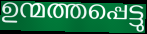
ഉന്മത്തപ്പെട്ടു